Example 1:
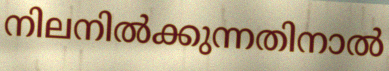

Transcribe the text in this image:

നിലനിൽക്കുന്നതിനാൽ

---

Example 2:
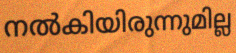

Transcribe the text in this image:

നൽകിയിരുന്നുമില്ല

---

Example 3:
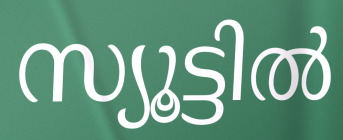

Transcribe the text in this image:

സ്യൂട്ടിൽ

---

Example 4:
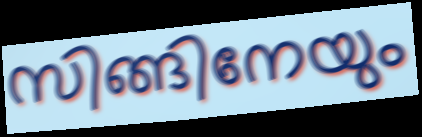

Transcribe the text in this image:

സിങ്ങിനേയും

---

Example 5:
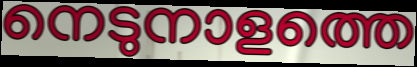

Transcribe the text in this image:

നെടുനാളത്തെ